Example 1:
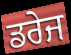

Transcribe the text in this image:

ਡਰੇਜ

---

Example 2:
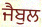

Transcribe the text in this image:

ਜੈਬੁਲ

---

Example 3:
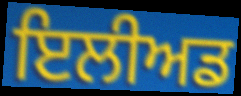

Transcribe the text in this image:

ਇਲੀਅਡ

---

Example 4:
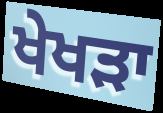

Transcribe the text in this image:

ਖੇਖੜਾ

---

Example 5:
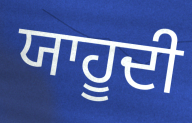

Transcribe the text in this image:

ਯਾਹੂਦੀ